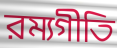
রম্যগীতি